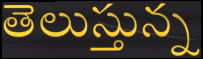
తెలుస్తున్న